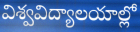
విశ్వవిద్యాలయాల్లో